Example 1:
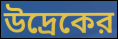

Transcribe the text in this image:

উদ্রেকের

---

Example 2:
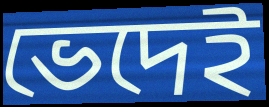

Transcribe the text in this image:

ভেদেই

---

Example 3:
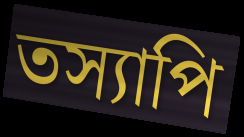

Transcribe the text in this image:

তস্যাপি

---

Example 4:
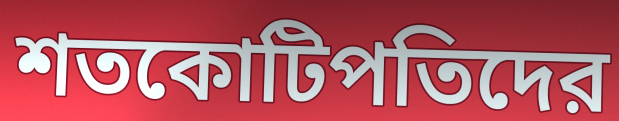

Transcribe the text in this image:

শতকোটিপতিদের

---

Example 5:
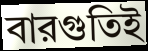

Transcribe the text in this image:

বারগুতিই